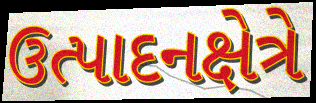
ઉત્પાદનક્ષેત્રે